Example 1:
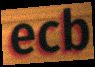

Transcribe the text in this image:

ecb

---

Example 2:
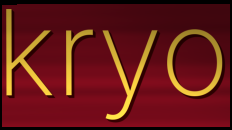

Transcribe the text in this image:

kryo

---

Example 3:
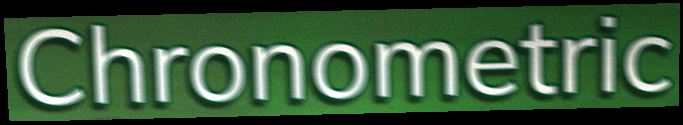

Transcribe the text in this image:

Chronometric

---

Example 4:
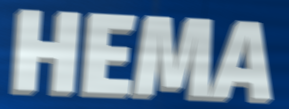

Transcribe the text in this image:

HEMA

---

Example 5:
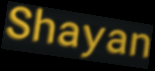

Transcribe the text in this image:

Shayan